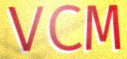
VCM